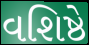
વશિષ્ઠે